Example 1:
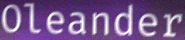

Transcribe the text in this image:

Oleander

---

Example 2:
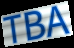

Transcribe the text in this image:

TBA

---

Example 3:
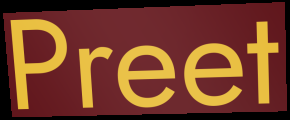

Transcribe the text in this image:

Preet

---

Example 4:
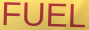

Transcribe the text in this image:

FUEL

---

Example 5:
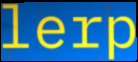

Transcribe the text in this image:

lerp